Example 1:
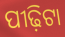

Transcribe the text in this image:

ପୀଢ଼ିଟା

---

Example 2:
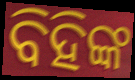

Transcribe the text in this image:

ବିହିଙ୍କ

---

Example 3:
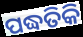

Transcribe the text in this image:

ପଦ୍ଧତିକି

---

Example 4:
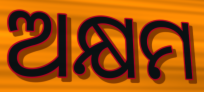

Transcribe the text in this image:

ଅକ୍ଷମ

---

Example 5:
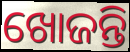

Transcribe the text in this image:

ଖୋଜନ୍ତି